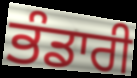
ਭੰਡਾਰੀ